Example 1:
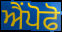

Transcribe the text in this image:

ਐਂਪੋਫੋ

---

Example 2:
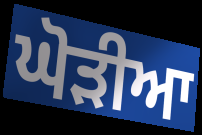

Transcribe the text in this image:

ਘੋੜੀਆ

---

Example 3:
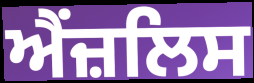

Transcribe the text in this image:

ਐਂਜ਼ਲਿਸ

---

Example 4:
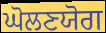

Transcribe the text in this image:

ਘੋਲਣਯੋਗ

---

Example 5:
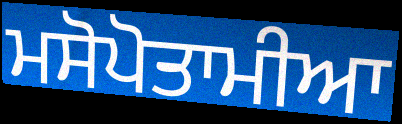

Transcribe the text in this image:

ਮਸੋਪੋਤਾਮੀਆ